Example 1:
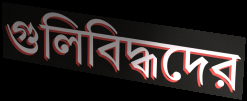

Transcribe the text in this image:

গুলিবিদ্ধদের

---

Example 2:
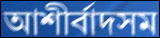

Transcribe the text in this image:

আশীর্বাদসম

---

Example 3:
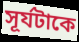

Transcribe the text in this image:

সূর্যটাকে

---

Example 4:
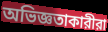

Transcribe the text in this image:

অভিজ্ঞতাকারীরা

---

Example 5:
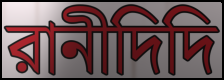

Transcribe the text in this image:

রানীদিদি